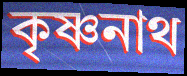
কৃষ্ণনাথ